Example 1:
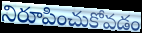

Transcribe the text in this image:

నిరూపించుకోవడం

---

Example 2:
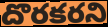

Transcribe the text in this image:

దొరకరని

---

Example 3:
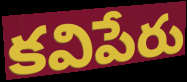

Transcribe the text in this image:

కవిపేరు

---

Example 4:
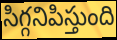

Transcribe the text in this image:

సిగ్గనిపిస్తుంది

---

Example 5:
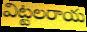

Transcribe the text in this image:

విట్టలరాయ